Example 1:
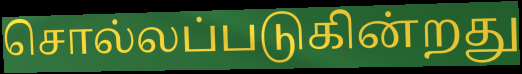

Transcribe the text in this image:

சொல்லப்படுகின்றது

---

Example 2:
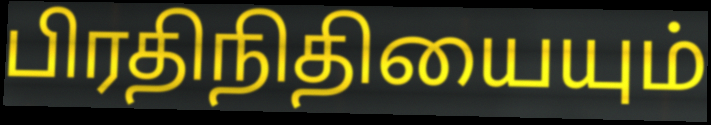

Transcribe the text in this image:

பிரதிநிதியையும்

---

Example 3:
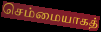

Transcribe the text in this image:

செம்மையாகத்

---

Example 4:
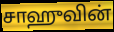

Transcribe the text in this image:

சாஹுவின்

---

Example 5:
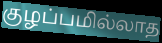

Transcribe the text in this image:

குழப்பமில்லாத